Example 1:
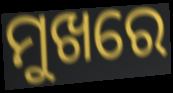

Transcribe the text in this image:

ମୁଖରେ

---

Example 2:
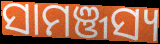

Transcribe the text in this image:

ସାମଞ୍ଜସ୍ୟ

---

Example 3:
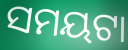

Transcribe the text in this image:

ସମୟଟା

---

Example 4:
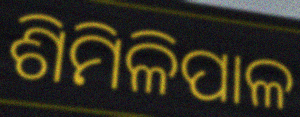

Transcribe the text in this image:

ଶିମିଳିପାଳ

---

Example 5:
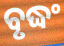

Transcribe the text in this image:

ବୃଦ୍ଧଂ